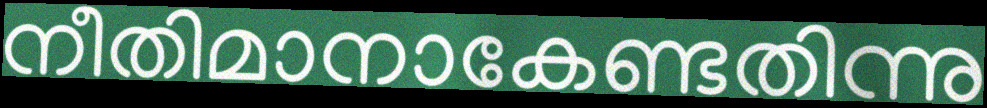
നീതിമാനാകേണ്ടതിന്നു